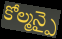
కోల్మన్పై